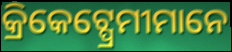
କ୍ରିକେଟ୍ପ୍ରେମୀମାନେ